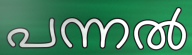
പന്നൽ